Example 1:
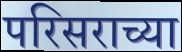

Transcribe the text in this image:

परिसराच्या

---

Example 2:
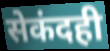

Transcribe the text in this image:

सेकंदही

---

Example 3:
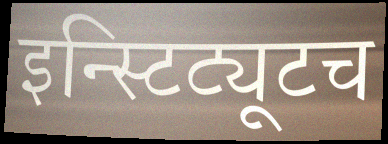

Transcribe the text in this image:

इन्स्टिट्यूटच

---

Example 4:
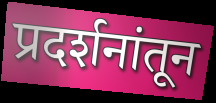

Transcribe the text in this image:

प्रदर्शनांतून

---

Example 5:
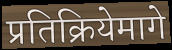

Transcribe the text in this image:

प्रतिक्रियेमागे